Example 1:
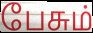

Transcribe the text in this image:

பேசும்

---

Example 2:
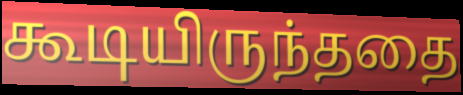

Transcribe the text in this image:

கூடியிருந்ததை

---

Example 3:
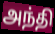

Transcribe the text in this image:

அந்தி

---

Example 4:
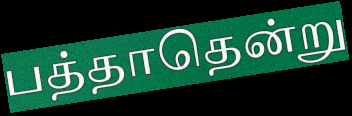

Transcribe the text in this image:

பத்தாதென்று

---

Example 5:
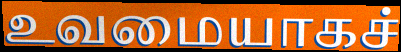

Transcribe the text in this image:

உவமையாகச்